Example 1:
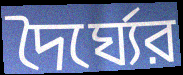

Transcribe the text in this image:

দৈর্ঘ্যের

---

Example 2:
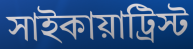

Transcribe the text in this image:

সাইকায়াট্রিস্ট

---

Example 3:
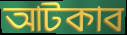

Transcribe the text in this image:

আটকাব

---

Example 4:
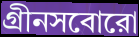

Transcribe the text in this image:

গ্রীনসবোরো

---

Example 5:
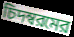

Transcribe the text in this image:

চিদম্বরমের